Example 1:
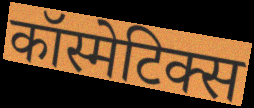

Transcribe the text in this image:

कॉस्मेटिक्स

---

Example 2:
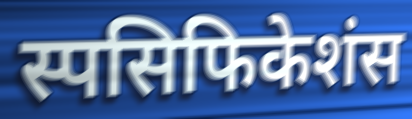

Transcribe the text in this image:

स्पसिफिकेशंस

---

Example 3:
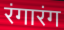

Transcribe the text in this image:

रंगारंग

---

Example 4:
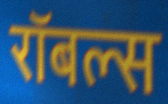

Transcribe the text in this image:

रॉबल्स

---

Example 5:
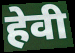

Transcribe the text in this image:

हेवी